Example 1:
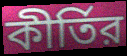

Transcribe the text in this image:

কীর্তির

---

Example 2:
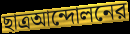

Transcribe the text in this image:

ছাত্রআন্দোলনের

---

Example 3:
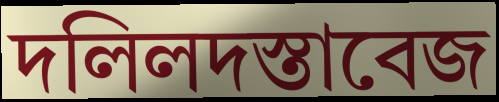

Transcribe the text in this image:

দলিলদস্তাবেজ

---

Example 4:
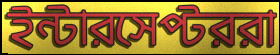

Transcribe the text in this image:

ইন্টারসেপ্টররা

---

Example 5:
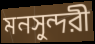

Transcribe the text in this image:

মনসুন্দরী